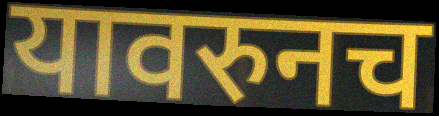
यावरुनच